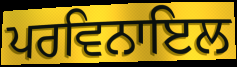
ਪਰਵਿਨਾਇਲ